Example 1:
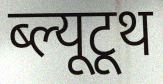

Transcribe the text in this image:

ब्ल्यूटूथ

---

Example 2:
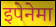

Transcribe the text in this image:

इपेनेमा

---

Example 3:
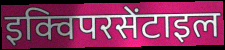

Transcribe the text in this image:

इक्विपरसेंटाइल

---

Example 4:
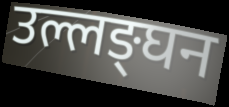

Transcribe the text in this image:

उल्लङ्घन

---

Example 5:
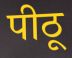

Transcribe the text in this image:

पीठू